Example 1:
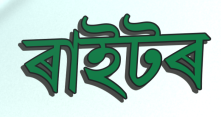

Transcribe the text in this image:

ৰাইটৰ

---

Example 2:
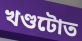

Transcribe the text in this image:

খণ্ডটোত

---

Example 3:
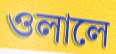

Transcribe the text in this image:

ওলালে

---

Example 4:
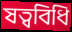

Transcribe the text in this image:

ষত্ববিধি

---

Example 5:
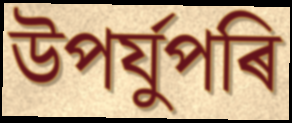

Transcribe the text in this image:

উপৰ্যুপৰি